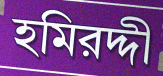
হমিরদ্দী